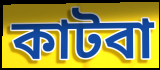
কাটবা